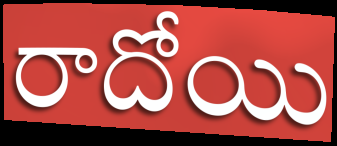
రాదోయి